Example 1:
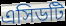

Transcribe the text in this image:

এসিডটি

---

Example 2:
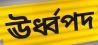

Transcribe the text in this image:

ঊর্ধ্বপদ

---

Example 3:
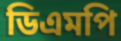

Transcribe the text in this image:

ডিএমপি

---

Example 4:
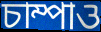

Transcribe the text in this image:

চাম্পাও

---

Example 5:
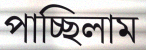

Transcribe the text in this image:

পাচ্ছিলাম